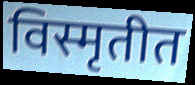
विस्मृतीत